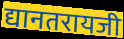
द्यानतरायजी